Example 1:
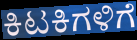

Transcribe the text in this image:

ಕಿಟಕಿಗಳಿಗೆ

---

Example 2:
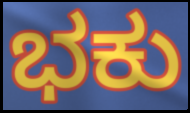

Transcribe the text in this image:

ಭಕು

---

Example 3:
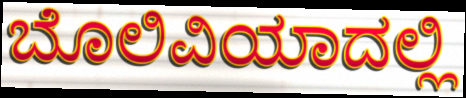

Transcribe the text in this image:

ಬೊಲಿವಿಯಾದಲ್ಲಿ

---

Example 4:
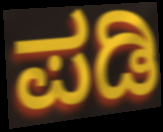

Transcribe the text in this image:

ಪಡಿ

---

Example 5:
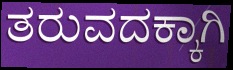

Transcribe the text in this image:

ತರುವದಕ್ಕಾಗಿ